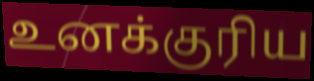
உனக்குரிய